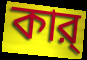
কার্